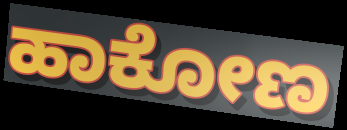
ಹಾಕೋಣ